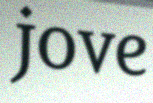
jove